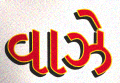
વાઝે